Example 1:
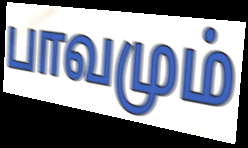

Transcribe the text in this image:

பாவமும்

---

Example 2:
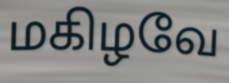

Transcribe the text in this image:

மகிழவே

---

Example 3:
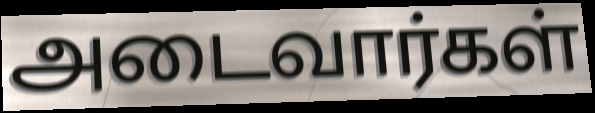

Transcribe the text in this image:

அடைவார்கள்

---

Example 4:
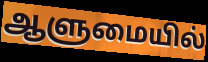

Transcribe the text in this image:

ஆளுமையில்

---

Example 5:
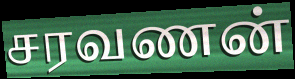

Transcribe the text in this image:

சரவணன்